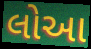
લોઆ